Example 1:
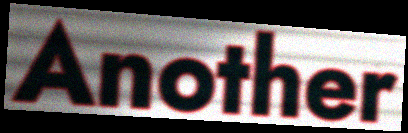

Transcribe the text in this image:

Another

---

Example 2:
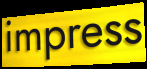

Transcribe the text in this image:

impress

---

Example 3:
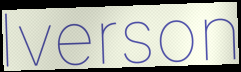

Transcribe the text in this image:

Iverson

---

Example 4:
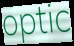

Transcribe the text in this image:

optic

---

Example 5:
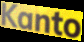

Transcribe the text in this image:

Kanto